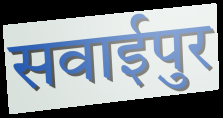
सवाईपुर